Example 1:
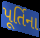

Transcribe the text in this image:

પૂર્તિના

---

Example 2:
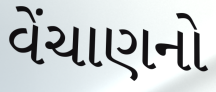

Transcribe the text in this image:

વેંચાણનો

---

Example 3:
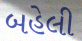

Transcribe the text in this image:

બહેલી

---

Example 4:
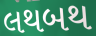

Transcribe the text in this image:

લથબથ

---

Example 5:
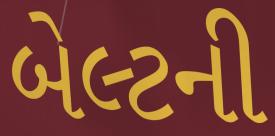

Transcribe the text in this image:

બેલ્ટની